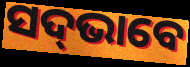
ସଦ୍‌ଭାବେ